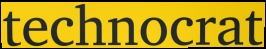
technocrat